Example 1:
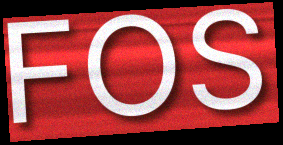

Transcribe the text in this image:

FOS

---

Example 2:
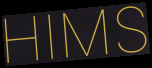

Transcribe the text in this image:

HIMS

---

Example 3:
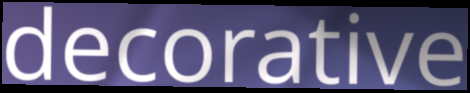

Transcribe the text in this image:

decorative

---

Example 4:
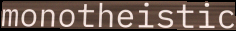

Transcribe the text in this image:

monotheistic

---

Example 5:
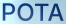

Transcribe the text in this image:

POTA